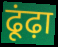
ढूंढ़ा